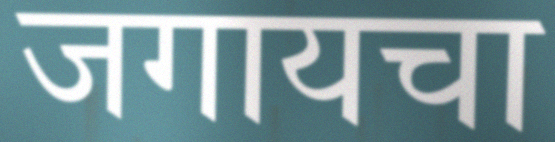
जगायचा